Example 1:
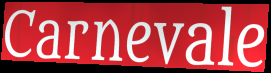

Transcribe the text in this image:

Carnevale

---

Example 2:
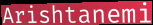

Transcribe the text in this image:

Arishtanemi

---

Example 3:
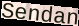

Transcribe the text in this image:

Sendan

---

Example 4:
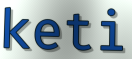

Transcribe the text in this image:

keti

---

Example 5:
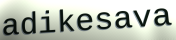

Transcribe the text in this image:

adikesava